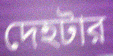
দেহটার